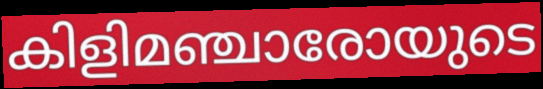
കിളിമഞ്ചാരോയുടെ